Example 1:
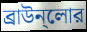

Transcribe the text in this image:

ব্রাউন্লোর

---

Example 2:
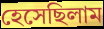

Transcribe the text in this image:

হেসেছিলাম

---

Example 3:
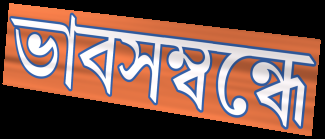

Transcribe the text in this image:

ভাবসম্বন্ধে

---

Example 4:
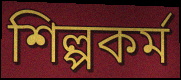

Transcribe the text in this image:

শিল্পকর্ম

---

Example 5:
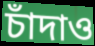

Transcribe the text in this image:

চাঁদাও